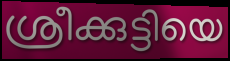
ശ്രീക്കുട്ടിയെ